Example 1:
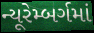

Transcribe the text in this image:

ન્યૂરેમ્બર્ગમાં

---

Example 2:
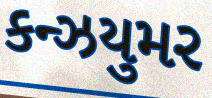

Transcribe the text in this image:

કન્ઝયુમર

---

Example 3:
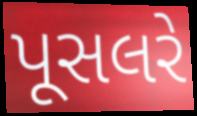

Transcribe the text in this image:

પૂસલરે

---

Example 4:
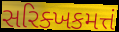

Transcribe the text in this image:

સરિક્ખકમત્તં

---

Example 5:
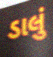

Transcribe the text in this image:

ડાલું